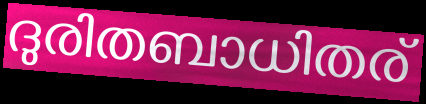
ദുരിതബാധിതര്